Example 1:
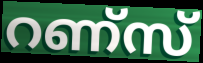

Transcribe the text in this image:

റണ്സ്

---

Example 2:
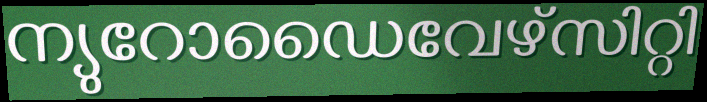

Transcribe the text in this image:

ന്യുറോഡൈവേഴ്സിറ്റി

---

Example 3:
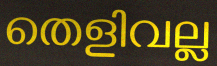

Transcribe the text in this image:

തെളിവല്ല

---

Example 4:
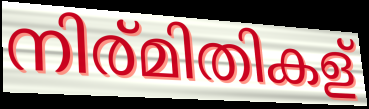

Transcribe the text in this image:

നിര്മിതികള്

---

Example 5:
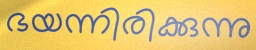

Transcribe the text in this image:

ഭയന്നിരിക്കുന്നു